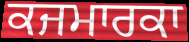
ਕਜਮਾਰਕਾ